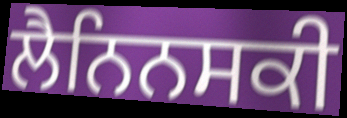
ਲੈਨਿਨਸਕੀ